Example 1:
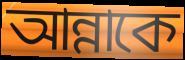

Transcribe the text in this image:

আন্নাকে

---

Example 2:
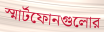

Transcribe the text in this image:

স্মার্টফোনগুলোর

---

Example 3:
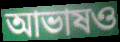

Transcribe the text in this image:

আভাষও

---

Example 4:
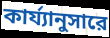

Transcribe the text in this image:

কার্য্যানুসারে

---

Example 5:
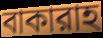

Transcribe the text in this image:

বাকারাহ